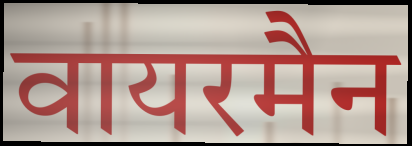
वायरमैन